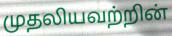
முதலியவற்றின்